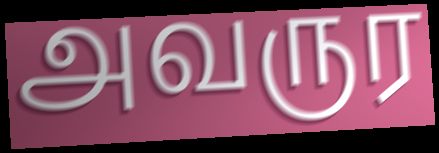
அவருர